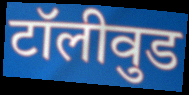
टॉलीवुड